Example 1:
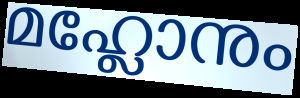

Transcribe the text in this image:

മഹ്ലോനും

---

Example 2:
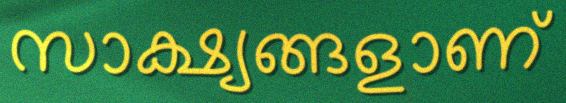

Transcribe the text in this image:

സാക്ഷ്യങ്ങളാണ്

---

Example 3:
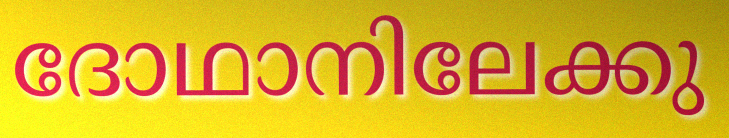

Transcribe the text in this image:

ദോഥാനിലേക്കു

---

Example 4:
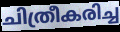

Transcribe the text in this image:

ചിത്രീകരിച്ച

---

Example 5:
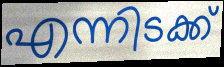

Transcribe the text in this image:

എന്നിടക്ക്